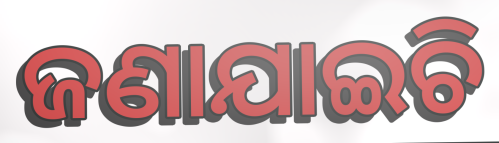
ଜଣାଯାଇଚି